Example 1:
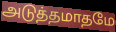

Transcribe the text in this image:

அடுத்தமாதமே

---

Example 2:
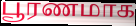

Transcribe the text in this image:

பூரணமாக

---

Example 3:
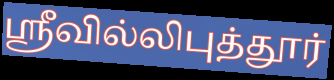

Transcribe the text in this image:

ஸ்ரீவில்லிபுத்தூர்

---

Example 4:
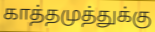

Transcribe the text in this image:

காத்தமுத்துக்கு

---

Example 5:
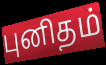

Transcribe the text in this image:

புனிதம்